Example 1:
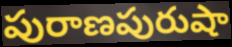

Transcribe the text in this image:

పురాణపురుషా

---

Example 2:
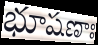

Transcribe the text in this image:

భూషణాః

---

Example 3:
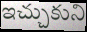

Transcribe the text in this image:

ఇచ్చుకుని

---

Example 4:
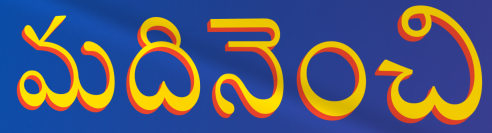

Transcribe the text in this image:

మదినెంచి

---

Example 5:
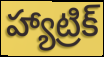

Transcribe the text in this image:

హ్యాట్రిక్